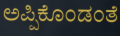
ಅಪ್ಪಿಕೊಂಡಂತೆ